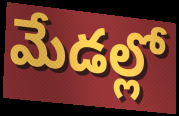
మేడల్లో